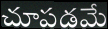
చూపడమే